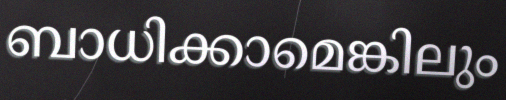
ബാധിക്കാമെങ്കിലും